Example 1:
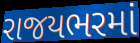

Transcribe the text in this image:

રાજયભરમાં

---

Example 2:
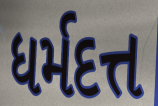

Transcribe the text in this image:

ધર્મદત્ત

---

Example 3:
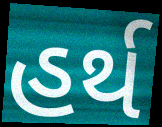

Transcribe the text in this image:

હર્થ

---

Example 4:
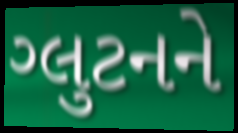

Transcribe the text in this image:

ગ્લુટનને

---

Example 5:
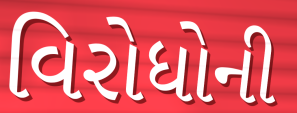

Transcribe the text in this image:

વિરોધોની